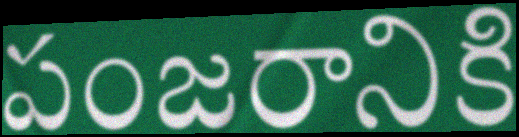
పంజరానికి